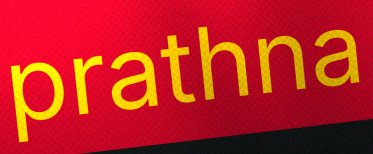
prathna